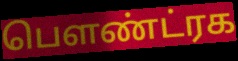
பௌண்ட்ரக